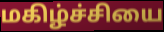
மகிழ்ச்சியை